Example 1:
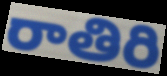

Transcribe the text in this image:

రాతిరి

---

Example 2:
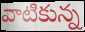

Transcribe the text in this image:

వాటికున్న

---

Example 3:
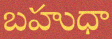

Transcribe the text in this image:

బహుధా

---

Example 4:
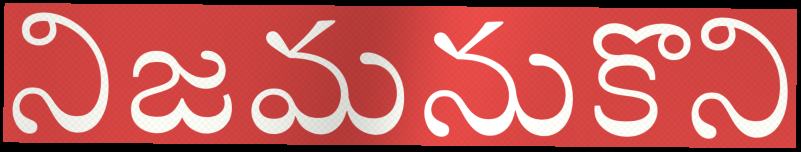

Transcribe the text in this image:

నిజమనుకొని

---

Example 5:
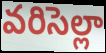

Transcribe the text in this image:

వరిసెల్లా